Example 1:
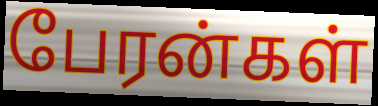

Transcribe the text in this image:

பேரன்கள்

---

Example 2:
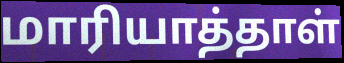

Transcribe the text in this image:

மாரியாத்தாள்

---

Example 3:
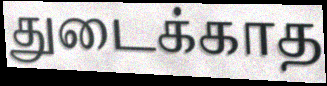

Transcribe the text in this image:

துடைக்காத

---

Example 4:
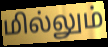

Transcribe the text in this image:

மில்லும்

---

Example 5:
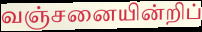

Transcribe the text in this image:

வஞ்சனையின்றிப்